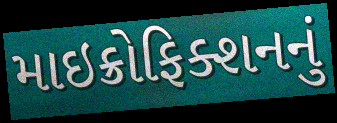
માઇક્રોફિક્શનનું